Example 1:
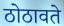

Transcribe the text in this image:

ठोठावते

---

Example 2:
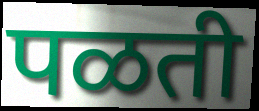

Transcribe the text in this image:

पळती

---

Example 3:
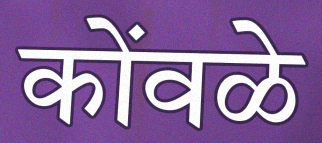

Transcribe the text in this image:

कोंवळे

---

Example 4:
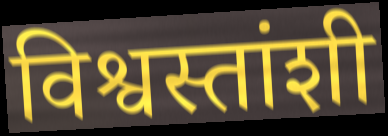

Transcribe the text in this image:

विश्वस्तांशी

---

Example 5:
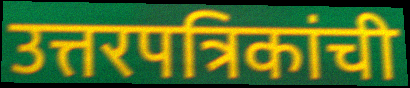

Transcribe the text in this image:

उत्तरपत्रिकांची